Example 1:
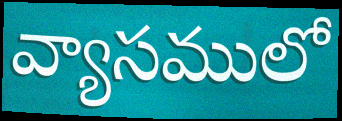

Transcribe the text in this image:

వ్యాసములో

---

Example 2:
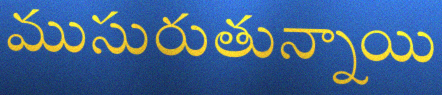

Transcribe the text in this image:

ముసురుతున్నాయి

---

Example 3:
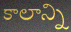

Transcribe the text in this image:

కాలాన్ని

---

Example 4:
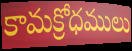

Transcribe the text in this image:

కామక్రోధములు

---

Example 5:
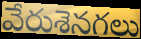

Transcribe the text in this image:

వేరుశెనగలు